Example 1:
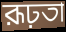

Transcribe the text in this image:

রূঢ়তা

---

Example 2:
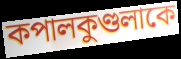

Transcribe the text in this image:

কপালকুণ্ডলাকে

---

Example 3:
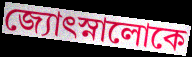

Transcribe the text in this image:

জ্যোৎস্নালোকে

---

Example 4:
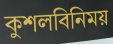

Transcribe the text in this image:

কুশলবিনিময়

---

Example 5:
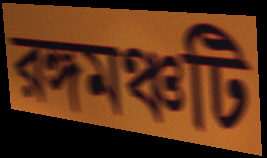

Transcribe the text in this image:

রঙ্গমঞ্চটি